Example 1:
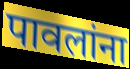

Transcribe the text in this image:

पावलांना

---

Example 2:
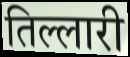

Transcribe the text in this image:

तिल्लारी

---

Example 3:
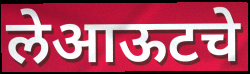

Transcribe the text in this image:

लेआऊटचे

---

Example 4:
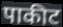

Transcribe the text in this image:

पाकीट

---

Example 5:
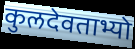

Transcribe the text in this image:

कुलदेवताभ्यो